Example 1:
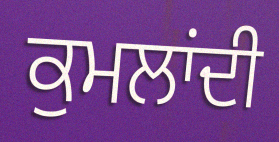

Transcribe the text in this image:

ਕੁਮਲਾਂਦੀ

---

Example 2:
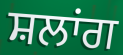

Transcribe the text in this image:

ਸ਼ਲਾਂਗ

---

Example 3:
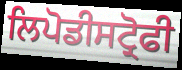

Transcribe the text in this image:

ਲਿਪੋਡੀਸਟ੍ਰੋਫੀ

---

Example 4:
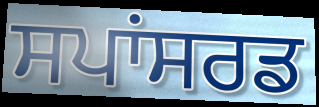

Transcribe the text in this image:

ਸਪਾਂਸਰਡ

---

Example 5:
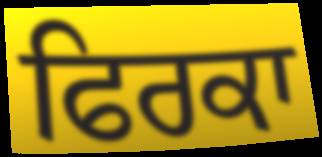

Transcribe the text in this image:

ਫਿਰਕਾ